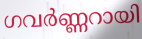
ഗവർണ്ണറായി